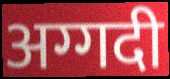
अग्गदी